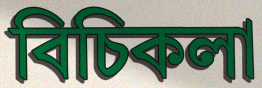
বিচিকলা